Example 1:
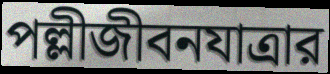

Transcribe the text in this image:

পল্লীজীবনযাত্রার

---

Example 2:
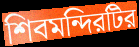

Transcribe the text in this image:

শিবমন্দিরটির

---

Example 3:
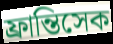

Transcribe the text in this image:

ফ্রান্তিসেক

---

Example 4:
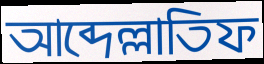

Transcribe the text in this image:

আব্দেল্লাতিফ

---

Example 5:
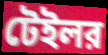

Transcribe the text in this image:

টেইলর